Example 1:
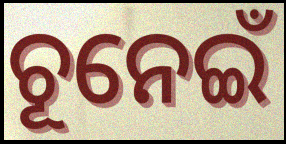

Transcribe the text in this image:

ଚୂନେଇଁ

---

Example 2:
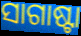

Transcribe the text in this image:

ସାଗାଷ୍ଟା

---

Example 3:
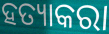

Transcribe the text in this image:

ହତ୍ୟାକରା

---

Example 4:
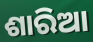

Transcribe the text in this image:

ଶାରିଆ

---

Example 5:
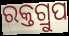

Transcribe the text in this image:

ରକ୍ତଗ୍ରୁପ